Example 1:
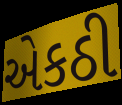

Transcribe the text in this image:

એકઠી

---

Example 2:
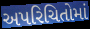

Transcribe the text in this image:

અપરિચિતોમાં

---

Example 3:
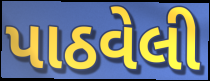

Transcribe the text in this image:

પાઠવેલી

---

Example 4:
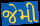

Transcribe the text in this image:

જેમી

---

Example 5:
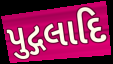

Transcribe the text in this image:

પુદ્ગલાદિ